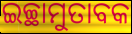
ଇଚ୍ଛାମୁତାବକ